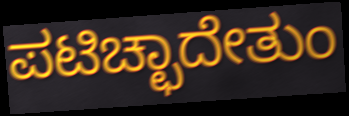
ಪಟಿಚ್ಛಾದೇತುಂ